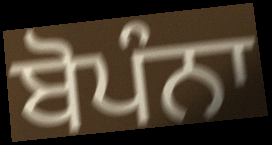
ਬੋਪੰਨਾ